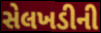
સેલખડીની